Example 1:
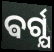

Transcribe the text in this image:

ଵର୍ଗ୍ଯ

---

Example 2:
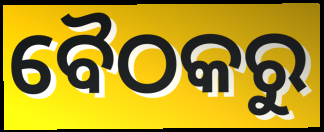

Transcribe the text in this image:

ବୈଠକରୁ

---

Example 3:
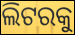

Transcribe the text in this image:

ଲିଟରକୁ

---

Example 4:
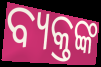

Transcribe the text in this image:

ବ୍ୟକ୍ତଙ୍କ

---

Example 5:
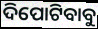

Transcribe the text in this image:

ଦିପୋଟିବାବୁ